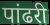
पांढरी